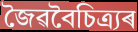
জৈৱবৈচিত্ৰ্যৰ